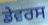
ਡੇਵਰਸ